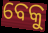
ବେକୁ